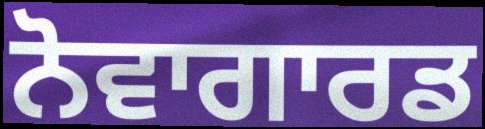
ਨੋਵਾਗਾਰਡ